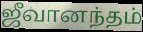
ஜீவானந்தம்